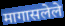
मागासलेले